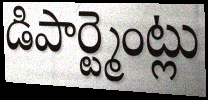
డిపార్ట్మెంట్లు